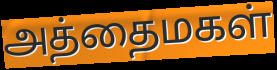
அத்தைமகள்